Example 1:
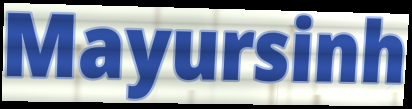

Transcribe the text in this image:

Mayursinh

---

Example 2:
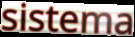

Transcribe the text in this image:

sistema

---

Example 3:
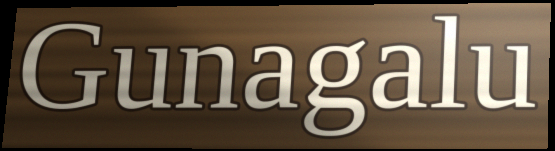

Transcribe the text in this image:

Gunagalu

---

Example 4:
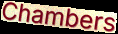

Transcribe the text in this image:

Chambers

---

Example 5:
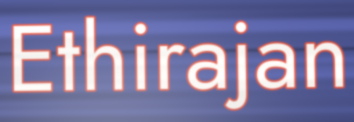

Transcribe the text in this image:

Ethirajan